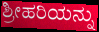
ಶ್ರೀಹರಿಯನ್ನು